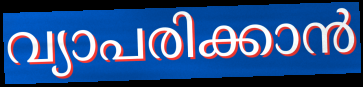
വ്യാപരിക്കാൻ